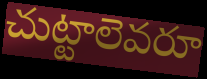
చుట్టాలెవరూ